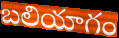
బలియాగం